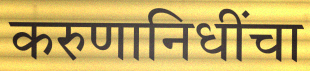
करुणानिधींचा